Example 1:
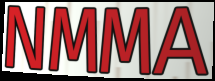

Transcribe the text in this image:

NMMA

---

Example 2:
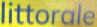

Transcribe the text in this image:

littorale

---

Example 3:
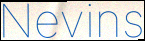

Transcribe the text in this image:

Nevins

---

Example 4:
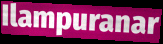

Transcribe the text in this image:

Ilampuranar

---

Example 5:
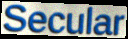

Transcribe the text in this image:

Secular